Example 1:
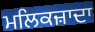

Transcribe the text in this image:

ਮਲਿਕਜ਼ਾਦਾ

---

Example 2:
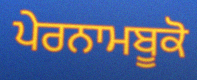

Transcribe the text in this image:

ਪੇਰਨਾਮਬੂਕੋ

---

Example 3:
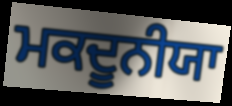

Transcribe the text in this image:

ਮਕਦੂਨੀਯਾ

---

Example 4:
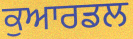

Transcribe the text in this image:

ਕੁਆਰਡਲ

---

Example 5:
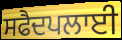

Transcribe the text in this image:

ਸਫੈਦਪਲਾਈ